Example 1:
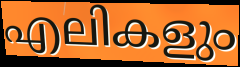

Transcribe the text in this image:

എലികളും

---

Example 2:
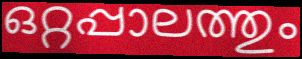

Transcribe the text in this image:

ഒറ്റപ്പാലത്തും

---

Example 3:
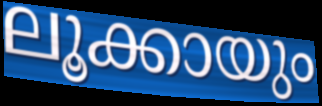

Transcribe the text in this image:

ലൂക്കായും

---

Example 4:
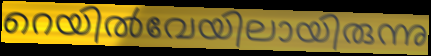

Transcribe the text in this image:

റെയിൽവേയിലായിരുന്നു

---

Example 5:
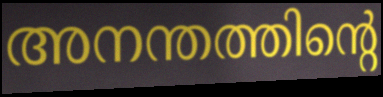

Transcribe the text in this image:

അനന്തത്തിന്റെ